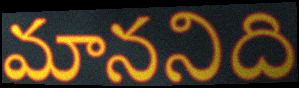
మాననిది